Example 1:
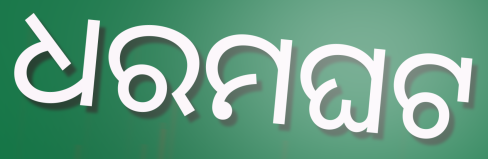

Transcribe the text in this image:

ଧରମଘଟ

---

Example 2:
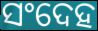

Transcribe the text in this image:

ସଂଦେହ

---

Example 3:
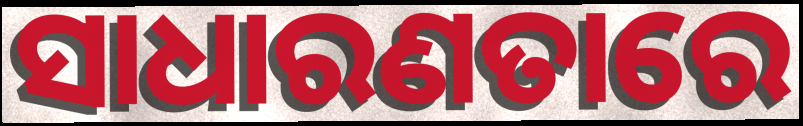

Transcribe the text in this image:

ସାଧାରଣତାରେ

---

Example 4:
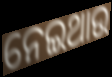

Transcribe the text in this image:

ନେଇଥାଉ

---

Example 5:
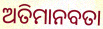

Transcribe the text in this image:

ଅତିମାନବତା